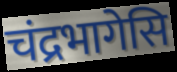
चंद्रभागेसि